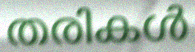
തരികൾ